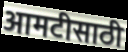
आमटीसाठी